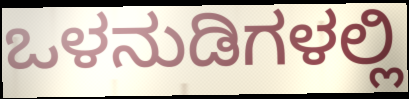
ಒಳನುಡಿಗಳಲ್ಲಿ